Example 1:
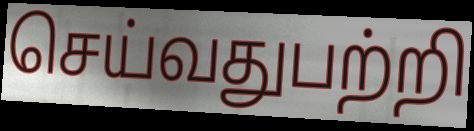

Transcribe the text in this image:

செய்வதுபற்றி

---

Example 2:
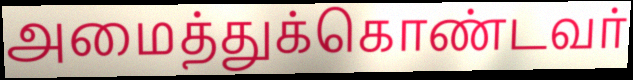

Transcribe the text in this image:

அமைத்துக்கொண்டவர்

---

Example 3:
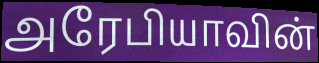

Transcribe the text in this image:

அரேபியாவின்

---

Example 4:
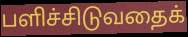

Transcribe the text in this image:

பளிச்சிடுவதைக்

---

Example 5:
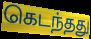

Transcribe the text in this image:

கெடந்தது